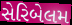
સેરિબેલમ